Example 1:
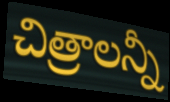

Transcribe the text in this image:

చిత్రాలన్నీ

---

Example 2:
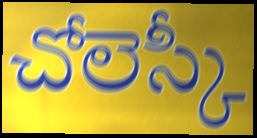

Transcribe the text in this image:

చోలెస్కీ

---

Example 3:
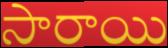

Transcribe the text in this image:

సారాయి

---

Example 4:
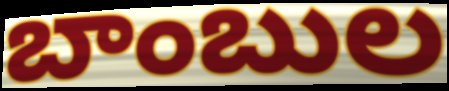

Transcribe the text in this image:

బాంబుల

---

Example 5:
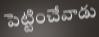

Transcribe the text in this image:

పెట్టించేవాడు